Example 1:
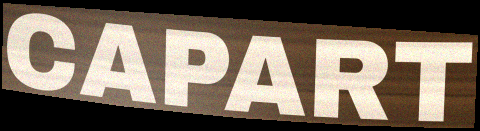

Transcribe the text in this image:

CAPART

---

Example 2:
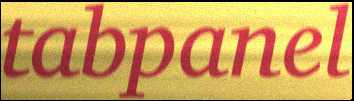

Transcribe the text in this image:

tabpanel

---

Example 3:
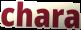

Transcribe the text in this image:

chara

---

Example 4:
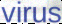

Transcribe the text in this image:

virus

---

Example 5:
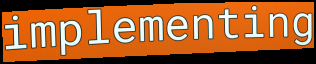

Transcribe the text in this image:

implementing